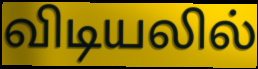
விடியலில்